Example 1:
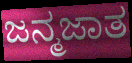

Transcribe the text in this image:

ಜನ್ಮಜಾತ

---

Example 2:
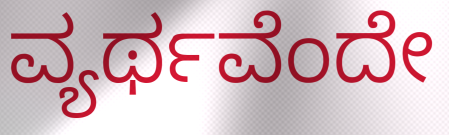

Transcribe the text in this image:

ವ್ಯರ್ಥವೆಂದೇ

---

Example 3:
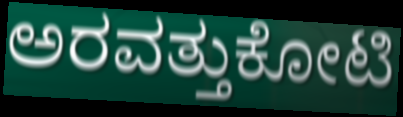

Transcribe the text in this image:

ಅರವತ್ತುಕೋಟಿ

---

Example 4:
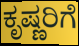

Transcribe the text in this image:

ಕೃಷ್ಣರಿಗೆ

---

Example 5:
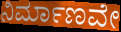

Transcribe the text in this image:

ನಿರ್ಮಾಣವೇ